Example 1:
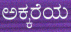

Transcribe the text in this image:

ಅಕ್ಕರೆಯ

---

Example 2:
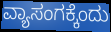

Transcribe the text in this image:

ವ್ಯಾಸಂಗಕ್ಕೆಂದು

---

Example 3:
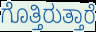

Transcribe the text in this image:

ಗೊತ್ತಿರುತ್ತಾರೆ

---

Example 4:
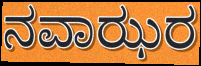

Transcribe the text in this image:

ನವಾಝರ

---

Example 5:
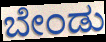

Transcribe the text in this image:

ಬೇಂಡು